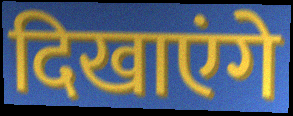
दिखाएंगे